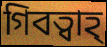
গিবত্বাহ্